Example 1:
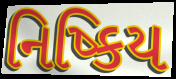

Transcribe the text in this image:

નિષ્કિય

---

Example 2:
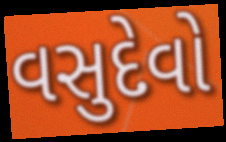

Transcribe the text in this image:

વસુદેવો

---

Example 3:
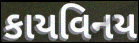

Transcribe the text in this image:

કાયવિનય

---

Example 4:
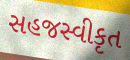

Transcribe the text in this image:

સહજસ્વીકૃત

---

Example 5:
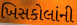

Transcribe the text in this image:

ખિસકોલાંની